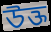
উক্ত